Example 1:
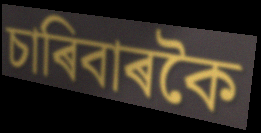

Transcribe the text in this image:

চাৰিবাৰকৈ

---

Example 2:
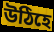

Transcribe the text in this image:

উঠিহে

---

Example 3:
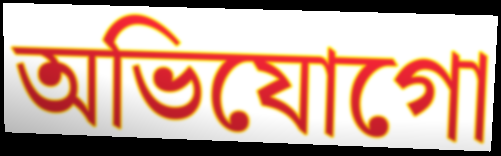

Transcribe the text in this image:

অভিযোগো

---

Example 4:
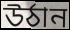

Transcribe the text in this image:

উঠান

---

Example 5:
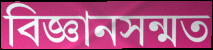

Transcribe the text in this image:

বিজ্ঞানসন্মত